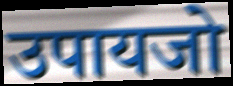
उपायजो